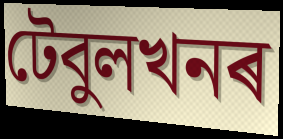
টেবুলখনৰ